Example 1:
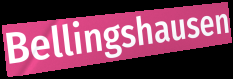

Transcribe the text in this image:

Bellingshausen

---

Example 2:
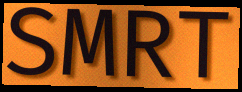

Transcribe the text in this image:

SMRT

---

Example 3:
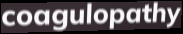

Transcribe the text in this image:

coagulopathy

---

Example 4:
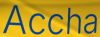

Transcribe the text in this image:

Accha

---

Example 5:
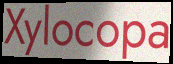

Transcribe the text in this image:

Xylocopa